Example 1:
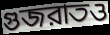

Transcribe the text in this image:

গুজরাতও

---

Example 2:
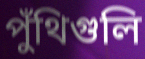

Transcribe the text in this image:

পুঁথিগুলি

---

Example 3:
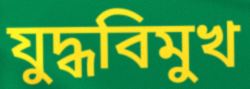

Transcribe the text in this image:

যুদ্ধবিমুখ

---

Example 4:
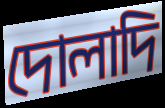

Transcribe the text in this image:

দোলাদি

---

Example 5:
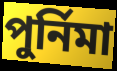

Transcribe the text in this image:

পুর্নিমা